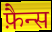
फ़ैन्स